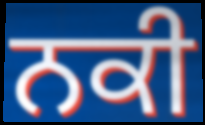
ਨਕੀ